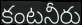
కంటనీరు